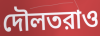
দৌলতরাও